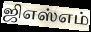
ஜிஎஸ்எம்